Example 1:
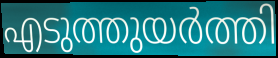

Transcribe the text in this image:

എടുത്തുയർത്തി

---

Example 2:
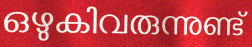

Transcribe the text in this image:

ഒഴുകിവരുന്നുണ്ട്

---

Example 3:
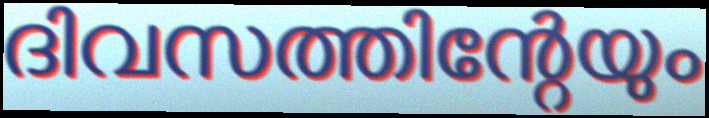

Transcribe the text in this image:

ദിവസത്തിന്റേയും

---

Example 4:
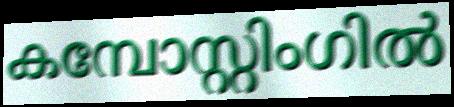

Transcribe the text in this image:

കമ്പോസ്റ്റിംഗിൽ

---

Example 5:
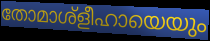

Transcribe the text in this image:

തോമാശ്ളീഹായെയും